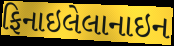
ફિનાઇલેલાનાઇન